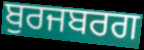
ਬੁਰਜਬਰਗ